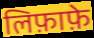
लिफ़ाफ़े